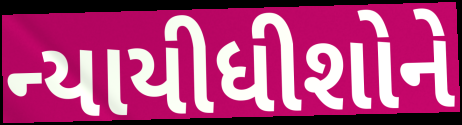
ન્યાયીધીશોને